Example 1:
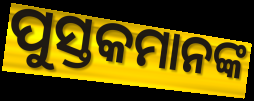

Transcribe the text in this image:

ପୁସ୍ତକମାନଙ୍କ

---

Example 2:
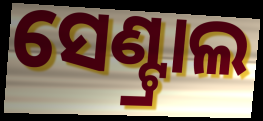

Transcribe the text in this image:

ସେଣ୍ଟ୍ରାଲ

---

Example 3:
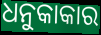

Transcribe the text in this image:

ଧନୁକାକାର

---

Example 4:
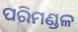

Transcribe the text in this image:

ପରିମଣ୍ଡଳ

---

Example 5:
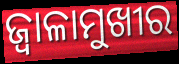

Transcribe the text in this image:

ଜ୍ୱାଳାମୁଖୀର